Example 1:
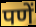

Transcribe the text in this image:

पणें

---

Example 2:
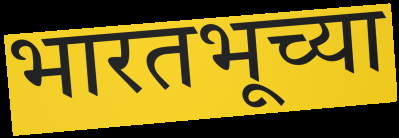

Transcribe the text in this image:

भारतभूच्या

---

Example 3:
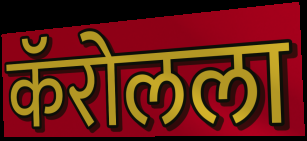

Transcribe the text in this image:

कॅरोलला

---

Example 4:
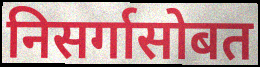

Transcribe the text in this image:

निसर्गासोबत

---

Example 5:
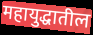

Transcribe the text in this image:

महायुद्धातील